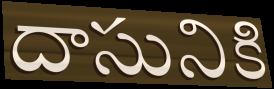
దాసునికి